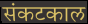
संकटकाल